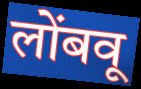
लोंबवू